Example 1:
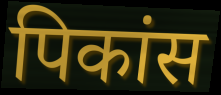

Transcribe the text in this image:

पिकांस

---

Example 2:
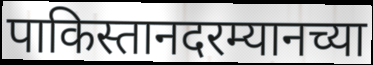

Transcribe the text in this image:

पाकिस्तानदरम्यानच्या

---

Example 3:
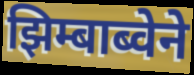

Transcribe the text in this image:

झिम्बाब्वेने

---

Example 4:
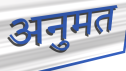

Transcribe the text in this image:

अनुमत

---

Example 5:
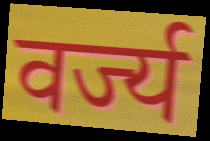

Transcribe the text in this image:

वर्ज्य